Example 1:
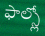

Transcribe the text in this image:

ఫాల్స్లో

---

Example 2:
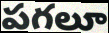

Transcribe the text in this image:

పగలూ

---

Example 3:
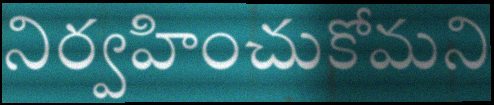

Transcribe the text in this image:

నిర్వహించుకోమని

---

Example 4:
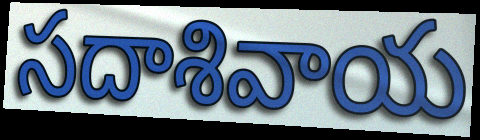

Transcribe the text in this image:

సదాశివాయ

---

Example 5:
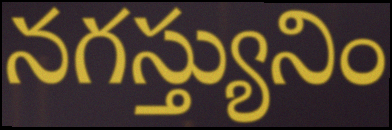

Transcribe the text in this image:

నగస్త్యునిం